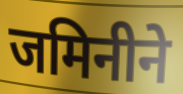
जमिनीने